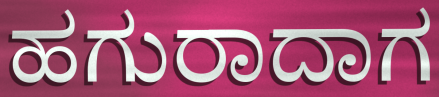
ಹಗುರಾದಾಗ